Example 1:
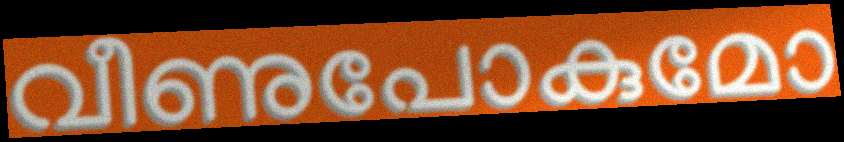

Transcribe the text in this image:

വീണുപോകുമോ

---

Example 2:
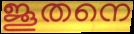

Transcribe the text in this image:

ജൂതനെ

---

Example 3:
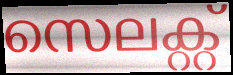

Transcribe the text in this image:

സെലക്റ്റ്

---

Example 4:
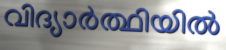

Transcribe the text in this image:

വിദ്യാർത്ഥിയിൽ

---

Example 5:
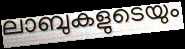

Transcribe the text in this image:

ലാബുകളുടെയും